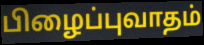
பிழைப்புவாதம்